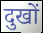
दुखों